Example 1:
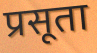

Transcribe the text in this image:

प्रसूता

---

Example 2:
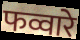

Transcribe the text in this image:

फव्वारे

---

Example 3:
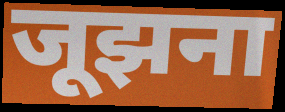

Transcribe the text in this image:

जूझना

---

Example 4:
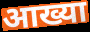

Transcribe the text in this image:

आख्या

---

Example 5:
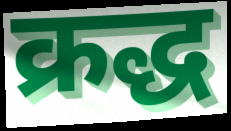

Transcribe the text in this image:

क्रद्ध